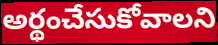
అర్థంచేసుకోవాలని